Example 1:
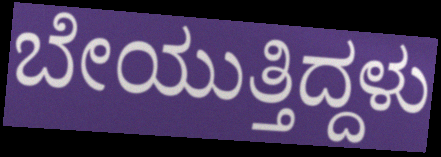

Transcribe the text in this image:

ಬೇಯುತ್ತಿದ್ದಳು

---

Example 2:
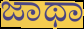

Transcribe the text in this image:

ಜಾಥಾ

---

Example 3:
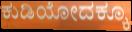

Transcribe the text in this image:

ಕುಡಿಯೋದಕ್ಕೂ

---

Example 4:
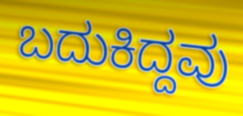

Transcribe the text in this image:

ಬದುಕಿದ್ದವು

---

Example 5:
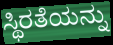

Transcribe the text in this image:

ಸ್ಥಿರತೆಯನ್ನು